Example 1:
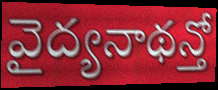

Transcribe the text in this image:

వైద్యనాథన్తో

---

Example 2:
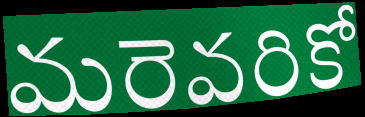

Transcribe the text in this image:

మరెవరికో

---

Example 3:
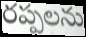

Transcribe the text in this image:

రప్పలను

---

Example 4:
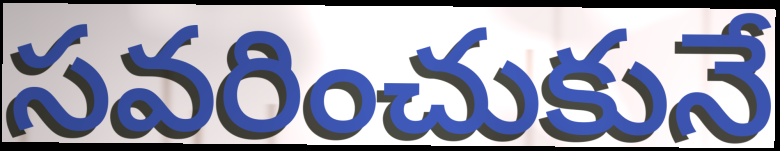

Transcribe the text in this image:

సవరించుకునే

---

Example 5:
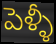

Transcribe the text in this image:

పెళ్ళీ